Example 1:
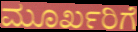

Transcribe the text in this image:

ಮೂರ್ಖರಿಗೆ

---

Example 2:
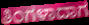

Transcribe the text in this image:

ತಿಂಗಳಾದಾಗ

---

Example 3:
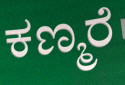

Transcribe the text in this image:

ಕಣ್ಮರೆ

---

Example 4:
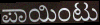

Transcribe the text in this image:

ಪಾಯಿಂಟು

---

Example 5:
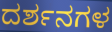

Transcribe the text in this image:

ದರ್ಶನಗಳ